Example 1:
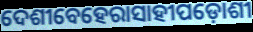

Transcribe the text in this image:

ଦେଶୀବେହେରାସାହୀପଡ଼ୋଶୀ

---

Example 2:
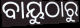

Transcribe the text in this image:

ବାୟୁଠାରୁ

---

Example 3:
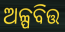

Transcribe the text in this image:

ଅଳ୍ପବିତ୍ତ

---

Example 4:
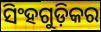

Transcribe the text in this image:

ସିଂହଗୁଡ଼ିକର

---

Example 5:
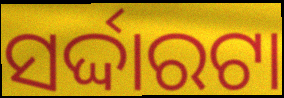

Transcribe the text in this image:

ସର୍ଦ୍ଦାରଟା